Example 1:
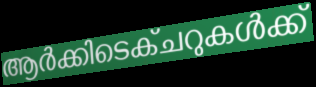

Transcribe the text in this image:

ആർക്കിടെക്ചറുകൾക്ക്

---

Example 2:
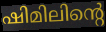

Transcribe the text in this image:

ഷിമിലിന്റെ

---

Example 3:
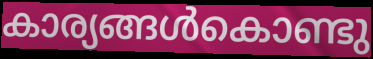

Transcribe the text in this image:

കാര്യങ്ങൾകൊണ്ടു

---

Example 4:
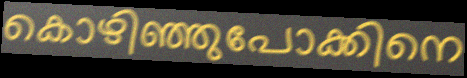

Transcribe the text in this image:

കൊഴിഞ്ഞുപോക്കിനെ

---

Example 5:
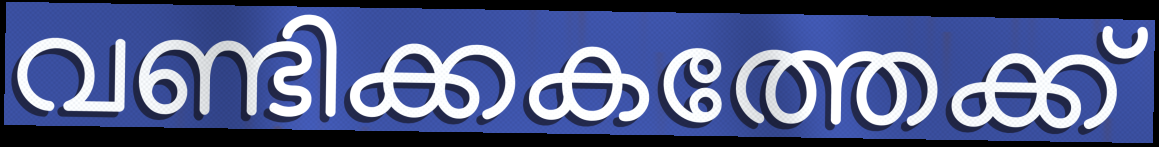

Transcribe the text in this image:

വണ്ടിക്കകത്തേക്ക്